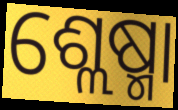
ଶ୍ଲେଷ୍ମା